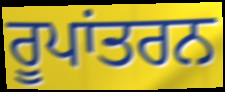
ਰੂਪਾਂਤਰਨ